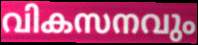
വികസനവും